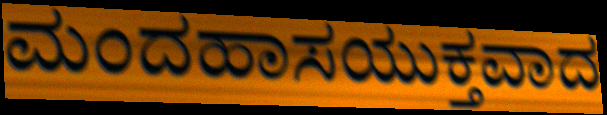
ಮಂದಹಾಸಯುಕ್ತವಾದ